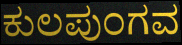
ಕುಲಪುಂಗವ